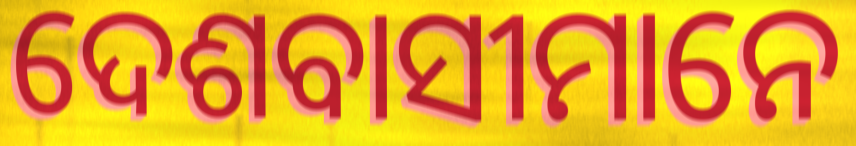
ଦେଶବାସୀମାନେ